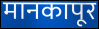
मानकापूर